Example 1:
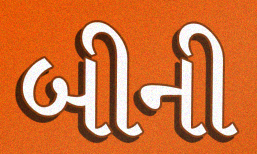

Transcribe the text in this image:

બીની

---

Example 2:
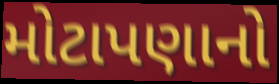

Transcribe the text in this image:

મોટાપણાનો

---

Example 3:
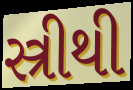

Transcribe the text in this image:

સ્ત્રીથી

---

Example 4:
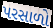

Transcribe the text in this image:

પરસાળો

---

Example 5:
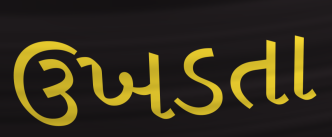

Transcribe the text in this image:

ઉખડતા